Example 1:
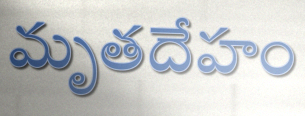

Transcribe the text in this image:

మృతదేహం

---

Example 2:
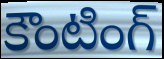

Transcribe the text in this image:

కౌంటింగ్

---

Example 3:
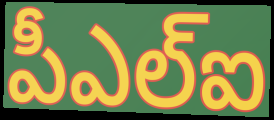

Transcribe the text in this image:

పీఎల్ఐ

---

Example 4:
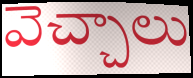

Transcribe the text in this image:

వెచ్చాలు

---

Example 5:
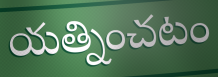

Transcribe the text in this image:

యత్నించటం